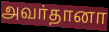
அவர்தானா